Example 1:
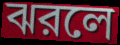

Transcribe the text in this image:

ঝরলে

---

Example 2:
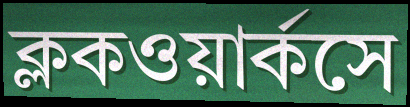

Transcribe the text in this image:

ক্লকওয়ার্কসে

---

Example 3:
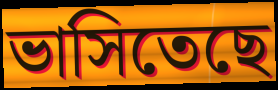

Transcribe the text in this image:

ভাসিতেছে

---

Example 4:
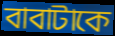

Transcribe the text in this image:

বাবাটাকে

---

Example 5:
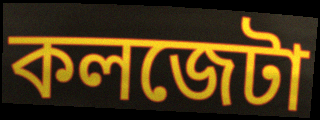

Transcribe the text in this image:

কলজেটা